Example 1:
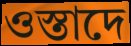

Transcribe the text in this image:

ওস্তাদে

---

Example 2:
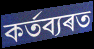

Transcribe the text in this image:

কৰ্তব্যৰত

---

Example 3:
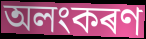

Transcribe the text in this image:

অলংকৰণ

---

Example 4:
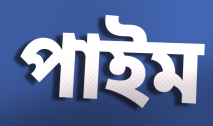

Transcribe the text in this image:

পাইম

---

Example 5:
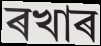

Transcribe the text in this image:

ৰখাৰ